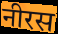
नीरस